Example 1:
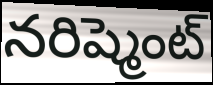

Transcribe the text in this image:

నరిష్మెంట్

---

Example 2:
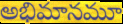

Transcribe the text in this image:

అభిమానమూ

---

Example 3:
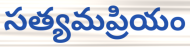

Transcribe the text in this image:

సత్యమప్రియం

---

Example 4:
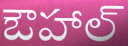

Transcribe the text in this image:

ఔహాల్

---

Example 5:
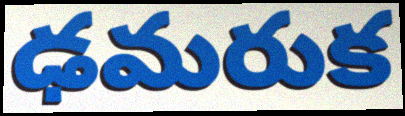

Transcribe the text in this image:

ఢమరుక